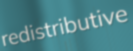
redistributive